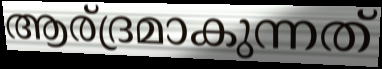
ആര്ദ്രമാകുന്നത്